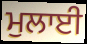
ਮੁਲਾਈ